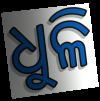
ଧୁଳି